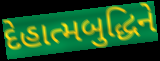
દેહાત્મબુદ્ધિને